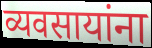
व्यवसायांना